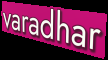
varadhar